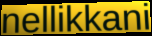
nellikkani